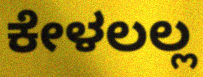
ಕೇಳಲಲ್ಲ